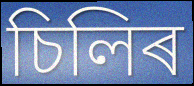
চিলিৰ